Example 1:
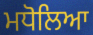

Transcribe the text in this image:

ਮਧੋਲਿਆ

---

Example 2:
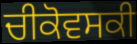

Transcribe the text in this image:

ਚੀਕੋਵਸਕੀ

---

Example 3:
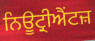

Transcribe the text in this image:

ਨਿਊਟ੍ਰੀਐਂਟਜ਼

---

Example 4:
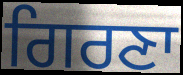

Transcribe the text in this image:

ਗਿਰਣਾ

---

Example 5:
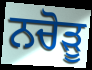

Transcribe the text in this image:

ਨਚੋੜੂ